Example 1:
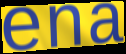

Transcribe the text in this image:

ena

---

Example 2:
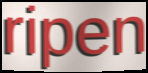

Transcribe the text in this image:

ripen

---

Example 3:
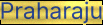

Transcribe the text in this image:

Praharaju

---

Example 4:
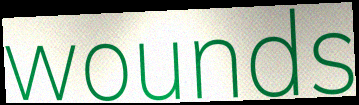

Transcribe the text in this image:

wounds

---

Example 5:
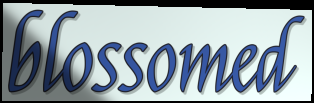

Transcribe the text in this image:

blossomed